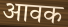
आवक